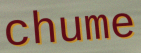
chume